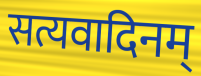
सत्यवादिनम्